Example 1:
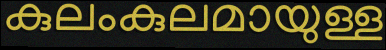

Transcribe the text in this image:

കുലംകുലമായുള്ള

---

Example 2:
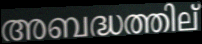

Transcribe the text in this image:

അബദ്ധത്തില്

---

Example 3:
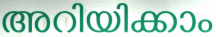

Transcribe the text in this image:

അറിയിക്കാം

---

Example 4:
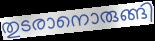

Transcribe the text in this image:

തുടരാനൊരുങ്ങി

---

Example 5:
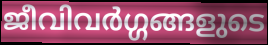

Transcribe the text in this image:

ജീവിവർഗ്ഗങ്ങളുടെ